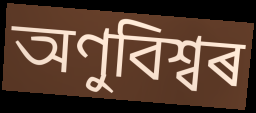
অণুবিশ্বৰ